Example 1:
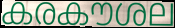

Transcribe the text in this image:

കരകൗശല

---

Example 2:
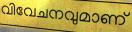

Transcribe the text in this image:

വിവേചനവുമാണ്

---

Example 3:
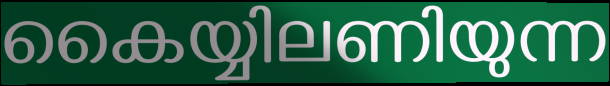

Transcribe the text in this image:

കൈയ്യിലണിയുന്ന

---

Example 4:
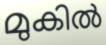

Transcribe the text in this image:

മുകിൽ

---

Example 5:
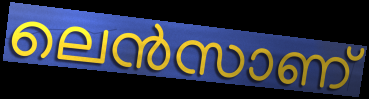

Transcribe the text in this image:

ലെൻസാണ്